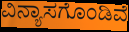
ವಿನ್ಯಾಸಗೊಂಡಿವೆ